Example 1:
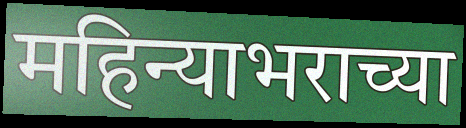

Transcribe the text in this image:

महिन्याभराच्या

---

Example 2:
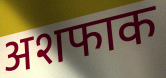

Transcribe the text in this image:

अशफाक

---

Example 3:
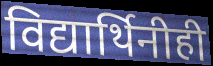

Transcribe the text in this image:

विद्यार्थिनीही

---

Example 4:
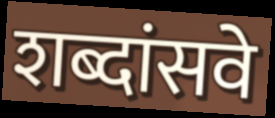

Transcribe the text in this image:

शब्दांसवे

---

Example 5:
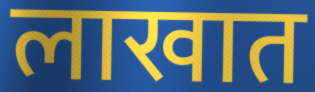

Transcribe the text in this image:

लाखात